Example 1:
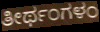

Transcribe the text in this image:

ತೀರ್ಥಂಗಳಂ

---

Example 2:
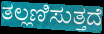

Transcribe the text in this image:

ತಲ್ಲಣಿಸುತ್ತದೆ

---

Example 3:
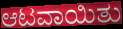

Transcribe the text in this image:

ಆಟವಾಯಿತು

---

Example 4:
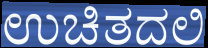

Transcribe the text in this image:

ಉಚಿತದಲಿ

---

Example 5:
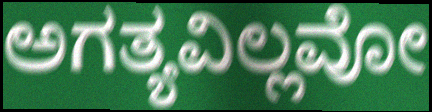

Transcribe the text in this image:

ಅಗತ್ಯವಿಲ್ಲವೋ